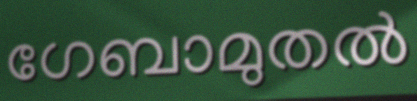
ഗേബാമുതൽ